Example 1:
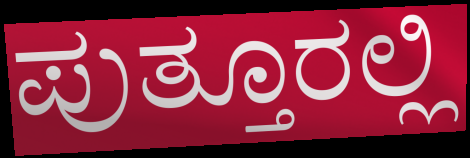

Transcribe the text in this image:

ಪುತ್ತೂರಲ್ಲಿ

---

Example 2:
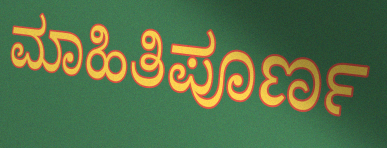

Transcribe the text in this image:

ಮಾಹಿತಿಪೂರ್ಣ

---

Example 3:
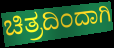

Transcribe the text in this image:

ಚಿತ್ರದಿಂದಾಗಿ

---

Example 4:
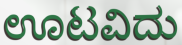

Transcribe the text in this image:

ಊಟವಿದು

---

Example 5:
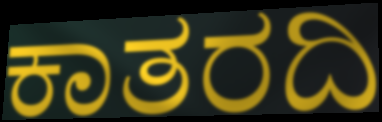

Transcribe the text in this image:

ಕಾತರದಿ